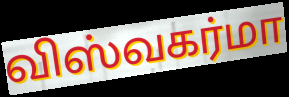
விஸ்வகர்மா